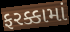
ફરક્કામાં